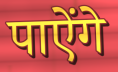
पाऐंगे